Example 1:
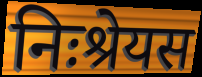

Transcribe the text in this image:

निःश्रेयस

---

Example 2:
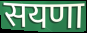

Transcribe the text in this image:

सयणा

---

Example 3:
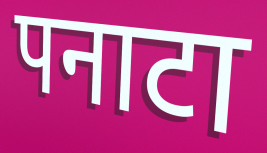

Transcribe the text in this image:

पनाटा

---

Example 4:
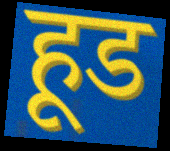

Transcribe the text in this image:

हूड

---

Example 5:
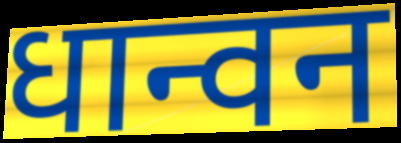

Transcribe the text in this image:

धान्वन